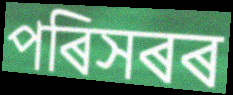
পৰিসৰৰ